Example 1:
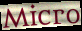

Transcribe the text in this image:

Micro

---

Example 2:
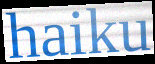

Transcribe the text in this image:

haiku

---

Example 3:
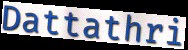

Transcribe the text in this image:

Dattathri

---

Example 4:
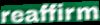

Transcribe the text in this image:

reaffirm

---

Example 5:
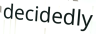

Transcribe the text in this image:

decidedly